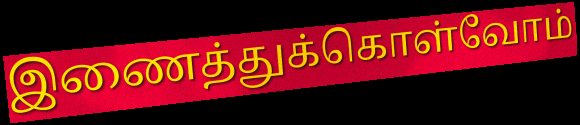
இணைத்துக்கொள்வோம்